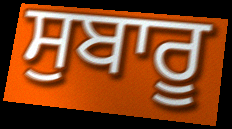
ਸੁਬਾਰੂ